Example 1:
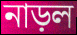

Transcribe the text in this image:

নাড়ল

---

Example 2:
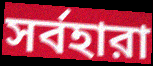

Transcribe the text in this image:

সর্বহারা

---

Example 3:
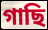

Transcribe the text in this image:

গাছি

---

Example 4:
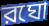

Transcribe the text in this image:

রঘো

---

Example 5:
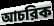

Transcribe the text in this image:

আচরিক